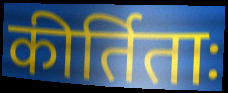
कीर्तिताः